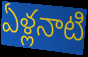
ఏళ్లనాటి